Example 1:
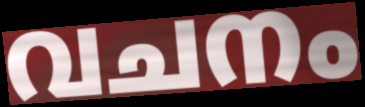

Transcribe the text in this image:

വചനം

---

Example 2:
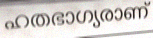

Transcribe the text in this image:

ഹതഭാഗ്യരാണ്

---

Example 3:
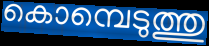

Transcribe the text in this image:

കൊമ്പെടുത്തു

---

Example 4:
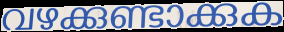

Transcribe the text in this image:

വഴക്കുണ്ടാക്കുക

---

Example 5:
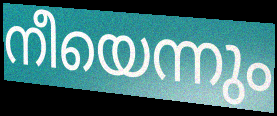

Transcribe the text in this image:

നീയെന്നും